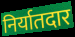
निर्यातदार